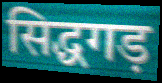
सिद्धगड़